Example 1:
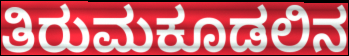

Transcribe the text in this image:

ತಿರುಮಕೂಡಲಿನ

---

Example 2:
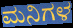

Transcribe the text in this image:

ಮನಿಗಳ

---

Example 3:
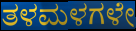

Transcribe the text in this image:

ತಳಮಳಗಳೇ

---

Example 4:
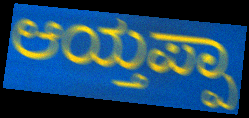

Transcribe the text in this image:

ಆಯ್ತಪ್ಪಾ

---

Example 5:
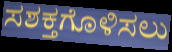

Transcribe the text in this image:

ಸಶಕ್ತಗೊಳಿಸಲು